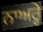
ਨਾਅਰ੍ਹੇ